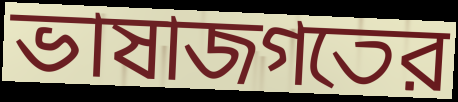
ভাষাজগতের